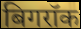
बिगरॉक